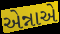
એન્નાએ